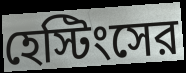
হেস্টিংসের